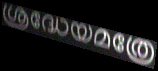
ശ്രദ്ധേയമത്രേ